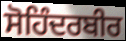
ਸੋਹਿੰਦਰਬੀਰ